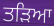
ਤੜਿਆ